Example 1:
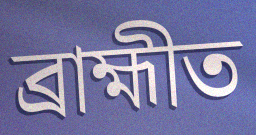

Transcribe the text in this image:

ব্ৰাহ্মীত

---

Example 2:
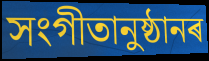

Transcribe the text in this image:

সংগীতানুষ্ঠানৰ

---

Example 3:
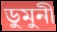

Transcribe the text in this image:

ডুমুনী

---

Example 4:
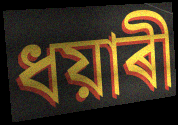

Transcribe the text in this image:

ধয়াৰী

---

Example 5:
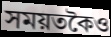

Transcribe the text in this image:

সময়তকৈও